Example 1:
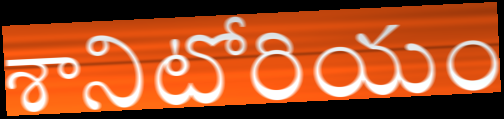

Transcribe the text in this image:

శానిటోరియం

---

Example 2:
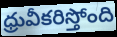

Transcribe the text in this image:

ధ్రువీకరిస్తోంది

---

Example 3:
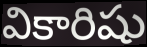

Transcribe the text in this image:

వికారిషు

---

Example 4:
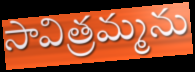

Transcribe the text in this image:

సావిత్రమ్మను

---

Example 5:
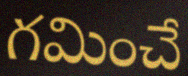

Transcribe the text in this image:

గమించే